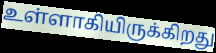
உள்ளாகியிருக்கிறது